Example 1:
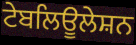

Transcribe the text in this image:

ਟੇਬਲਿਊਲੇਸ਼ਨ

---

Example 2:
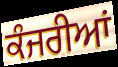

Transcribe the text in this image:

ਕੰਜਰੀਆਂ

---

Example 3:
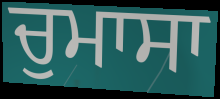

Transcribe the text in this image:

ਚੁਮਾਸਾ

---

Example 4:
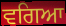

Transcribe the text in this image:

ਵਗਿਆ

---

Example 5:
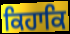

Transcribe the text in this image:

ਕਿਹਾਕਿ